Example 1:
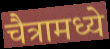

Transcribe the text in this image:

चैत्रामध्ये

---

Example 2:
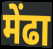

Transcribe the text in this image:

मेंढा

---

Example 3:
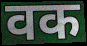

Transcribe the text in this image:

वक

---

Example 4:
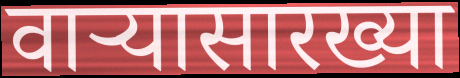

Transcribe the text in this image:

वाऱ्यासारख्या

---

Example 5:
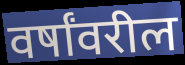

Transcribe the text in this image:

वर्षांवरील